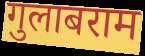
गुलाबराम